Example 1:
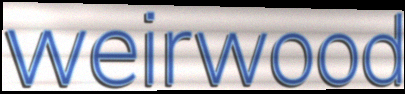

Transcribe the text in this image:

weirwood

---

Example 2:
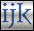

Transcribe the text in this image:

ijk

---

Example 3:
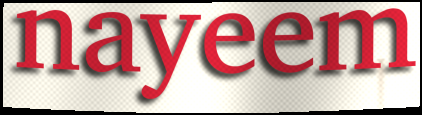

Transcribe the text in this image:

nayeem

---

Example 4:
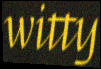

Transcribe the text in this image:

witty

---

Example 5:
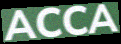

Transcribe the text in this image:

ACCA